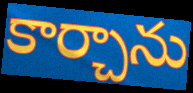
కార్చాను